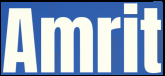
Amrit